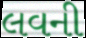
લવની